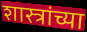
शास्त्रांच्या